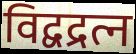
विद्वद्रत्न